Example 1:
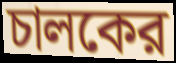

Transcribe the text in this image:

চালকের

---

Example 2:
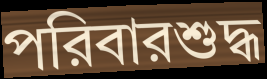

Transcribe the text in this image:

পরিবারশুদ্ধ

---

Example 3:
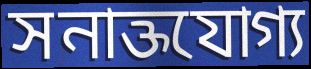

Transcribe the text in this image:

সনাক্তযোগ্য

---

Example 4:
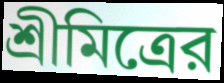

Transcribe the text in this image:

শ্রীমিত্রের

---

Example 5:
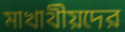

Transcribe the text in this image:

মাখাথীয়দের